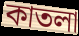
কাতলা